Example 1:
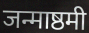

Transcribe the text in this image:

जन्माष्ठमी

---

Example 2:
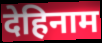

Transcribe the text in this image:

देहिनाम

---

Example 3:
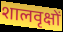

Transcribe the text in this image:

शालवृक्षों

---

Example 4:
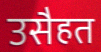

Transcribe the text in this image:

उसैहत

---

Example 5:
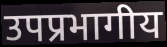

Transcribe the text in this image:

उपप्रभागीय